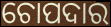
ଚୋପଦାର